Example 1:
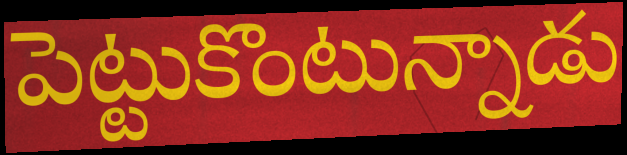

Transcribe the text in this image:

పెట్టుకొంటున్నాడు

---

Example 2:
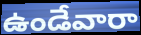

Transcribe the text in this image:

ఉండేవారా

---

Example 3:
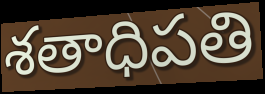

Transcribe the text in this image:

శతాధిపతి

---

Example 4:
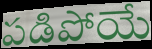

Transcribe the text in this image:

పడిపోయే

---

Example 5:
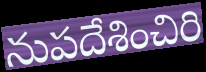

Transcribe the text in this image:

నుపదేశించిరి